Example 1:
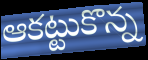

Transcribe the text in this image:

ఆకట్టుకొన్న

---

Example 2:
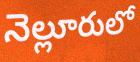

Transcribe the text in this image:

నెల్లూరులో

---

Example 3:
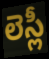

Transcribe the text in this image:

లెస్లీ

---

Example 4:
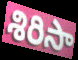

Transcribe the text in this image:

శిరిసా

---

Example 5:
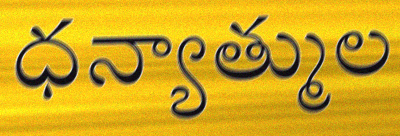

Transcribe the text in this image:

ధన్యాత్ముల